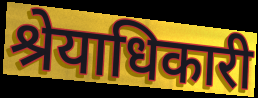
श्रेयाधिकारी